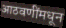
आठवणींमधून